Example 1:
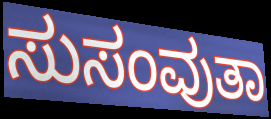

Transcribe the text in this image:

ಸುಸಂವುತಾ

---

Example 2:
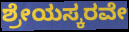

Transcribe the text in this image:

ಶ್ರೇಯಸ್ಕರವೇ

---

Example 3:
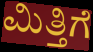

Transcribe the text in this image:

ಮಿತ್ತಿಗೆ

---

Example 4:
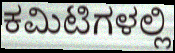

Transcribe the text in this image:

ಕಮಿಟಿಗಳಲ್ಲಿ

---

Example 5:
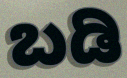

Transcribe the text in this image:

ಬಡಿ